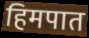
हिमपात